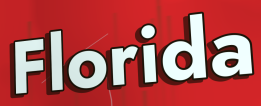
Florida